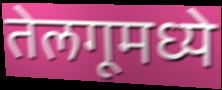
तेलगूमध्ये